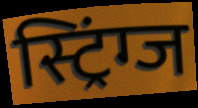
स्ट्रिंग्ज